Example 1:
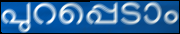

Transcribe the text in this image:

പുറപ്പെടാം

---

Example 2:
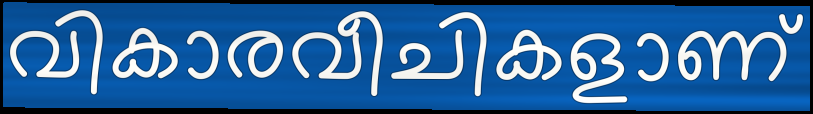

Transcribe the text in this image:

വികാരവീചികളാണ്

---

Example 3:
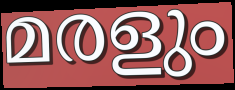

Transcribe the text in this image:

മരളും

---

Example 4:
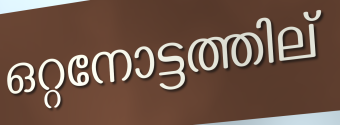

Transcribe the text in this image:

ഒറ്റനോട്ടത്തില്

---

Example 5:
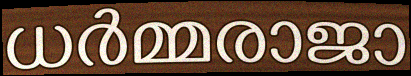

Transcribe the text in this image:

ധർമ്മരാജാ